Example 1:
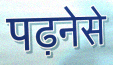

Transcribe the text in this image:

पढ़नेसे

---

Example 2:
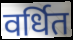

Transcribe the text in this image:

वर्धित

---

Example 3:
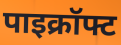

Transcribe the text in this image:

पाइक्रॉफ्ट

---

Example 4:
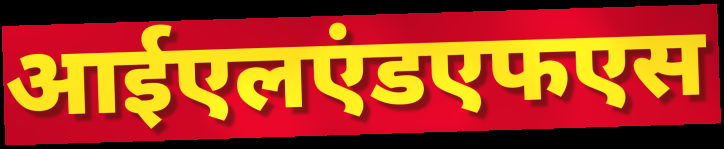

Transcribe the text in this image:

आईएलएंडएफएस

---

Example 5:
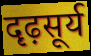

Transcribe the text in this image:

दृढ़सूर्य